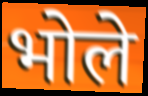
भोले